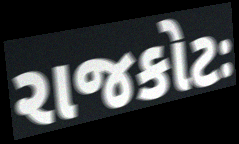
રાજકોટઃ